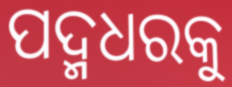
ପଦ୍ମଧରକୁ